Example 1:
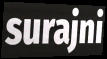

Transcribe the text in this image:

surajni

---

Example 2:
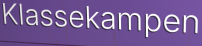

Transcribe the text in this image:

Klassekampen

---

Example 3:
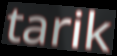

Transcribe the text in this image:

tarik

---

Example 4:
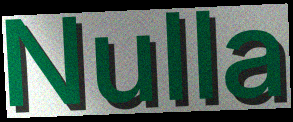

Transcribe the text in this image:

Nulla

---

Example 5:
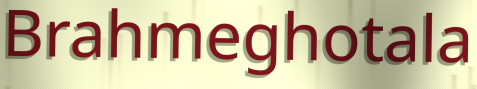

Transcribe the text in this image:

Brahmeghotala